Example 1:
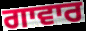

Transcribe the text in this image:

ਗਾਵਾਰ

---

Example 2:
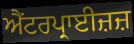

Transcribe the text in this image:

ਐਂਟਰਪ੍ਰਾਈਜ਼ਜ਼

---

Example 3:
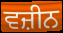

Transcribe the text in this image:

ਵਜ਼ੀਨ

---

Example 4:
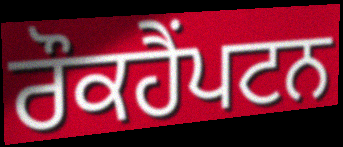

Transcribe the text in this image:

ਰੌਕਹੈਂਪਟਨ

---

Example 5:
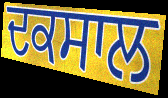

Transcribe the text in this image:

ਦਕਸਾਲ